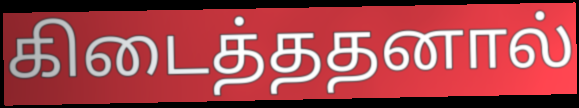
கிடைத்ததனால்